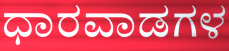
ಧಾರವಾಡಗಳ